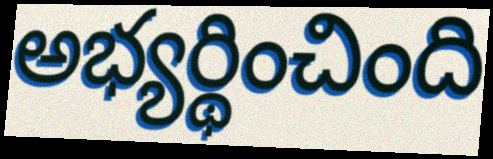
అభ్యర్థించింది